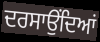
ਦਰਸਾਉਂਦਿਆਂ